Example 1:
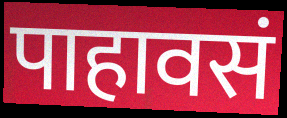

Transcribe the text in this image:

पाहावसं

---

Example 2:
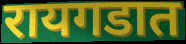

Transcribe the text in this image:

रायगडात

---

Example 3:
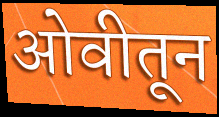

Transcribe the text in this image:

ओवीतून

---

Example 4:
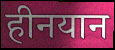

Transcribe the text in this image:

हीनयान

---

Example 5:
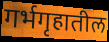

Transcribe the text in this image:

गर्भगृहातील